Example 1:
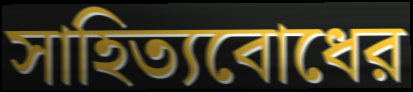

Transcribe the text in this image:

সাহিত্যবোধের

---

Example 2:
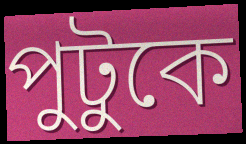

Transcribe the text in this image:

পুটুকে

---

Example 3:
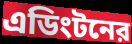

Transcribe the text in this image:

এডিংটনের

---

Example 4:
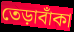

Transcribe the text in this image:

তেড়াবাঁকা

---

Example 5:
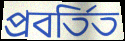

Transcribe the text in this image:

প্রবর্তিত